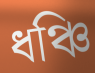
ধঞ্চি